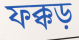
ফক্কড়